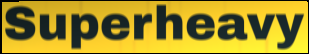
Superheavy